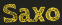
Saxo